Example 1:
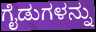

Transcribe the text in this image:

ಗೈಡುಗಳನ್ನು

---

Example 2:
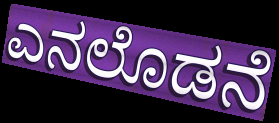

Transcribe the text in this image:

ಎನಲೊಡನೆ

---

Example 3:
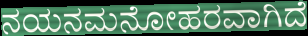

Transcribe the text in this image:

ನಯನಮನೋಹರವಾಗಿದೆ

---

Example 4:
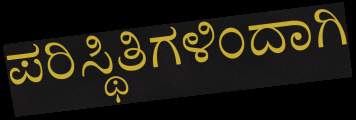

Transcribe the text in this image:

ಪರಿಸ್ಥಿತಿಗಳಿಂದಾಗಿ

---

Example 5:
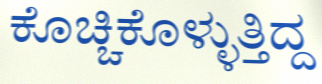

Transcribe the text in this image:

ಕೊಚ್ಚಿಕೊಳ್ಳುತ್ತಿದ್ದ